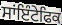
ਸਾਂਇੰਟੇਫਿਕ